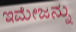
ಇಮೇಜನ್ನು